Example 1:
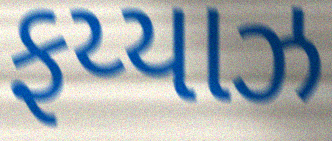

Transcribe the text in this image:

ફય્યાઝ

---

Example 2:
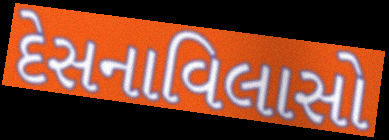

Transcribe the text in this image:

દેસનાવિલાસો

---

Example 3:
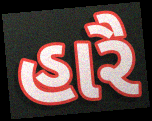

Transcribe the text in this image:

હારૈ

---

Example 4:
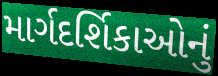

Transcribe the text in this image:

માર્ગદર્શિકાઓનું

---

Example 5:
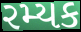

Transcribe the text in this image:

રમ્યક